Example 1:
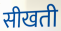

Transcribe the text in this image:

सीखती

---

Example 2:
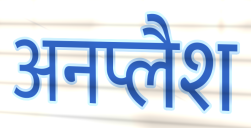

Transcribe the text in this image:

अनप्लैश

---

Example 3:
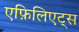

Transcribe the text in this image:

एफ़िलिएट्स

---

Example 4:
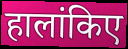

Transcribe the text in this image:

हालांकिए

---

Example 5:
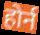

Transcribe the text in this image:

होर्न